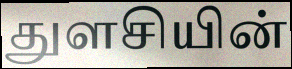
துளசியின்